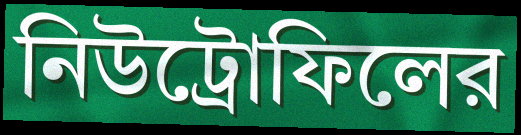
নিউট্রোফিলের